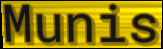
Munis